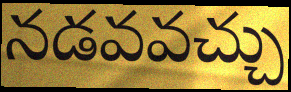
నడవవచ్చు